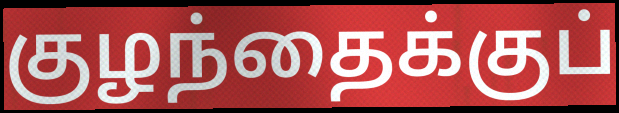
குழந்தைக்குப்